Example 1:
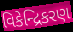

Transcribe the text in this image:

વિકેન્દ્રિકરણ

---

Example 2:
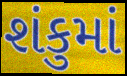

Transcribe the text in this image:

શંકુમાં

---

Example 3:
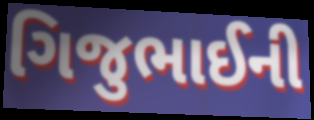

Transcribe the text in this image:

ગિજુભાઈની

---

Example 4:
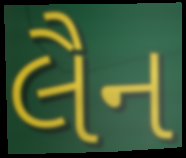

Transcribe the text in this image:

લૈન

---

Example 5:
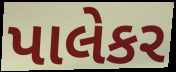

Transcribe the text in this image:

પાલેકર